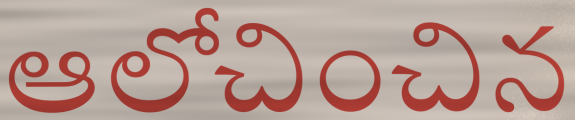
ఆలోచించిన